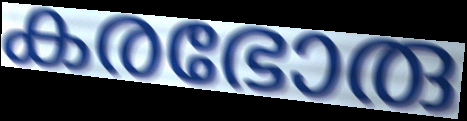
കരഭോരു